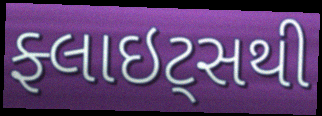
ફ્લાઇટ્સથી